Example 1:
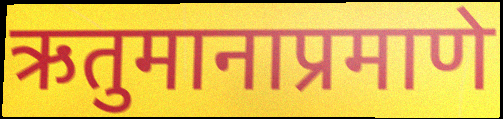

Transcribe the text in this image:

ऋतुमानाप्रमाणे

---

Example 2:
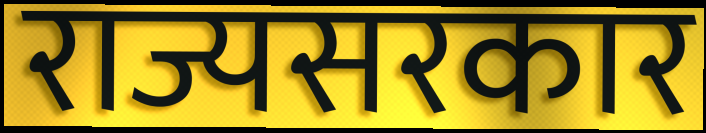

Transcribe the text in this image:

राज्यसरकार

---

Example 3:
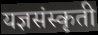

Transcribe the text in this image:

यज्ञसंस्कृती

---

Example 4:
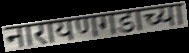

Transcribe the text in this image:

नारायणगडाच्या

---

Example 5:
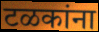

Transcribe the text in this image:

टळकांना